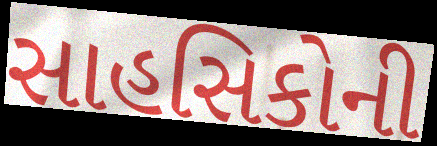
સાહસિકોની